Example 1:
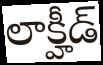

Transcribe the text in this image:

లాక్హీడ్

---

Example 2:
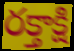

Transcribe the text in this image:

రక్తాక్షి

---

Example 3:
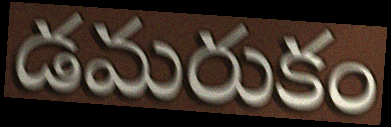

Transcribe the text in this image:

డమరుకం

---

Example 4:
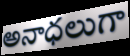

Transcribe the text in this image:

అనాధలుగా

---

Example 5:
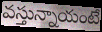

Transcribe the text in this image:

వస్తున్నాయంటే